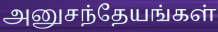
அனுசந்தேயங்கள்